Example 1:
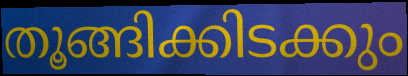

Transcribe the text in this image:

തൂങ്ങിക്കിടക്കും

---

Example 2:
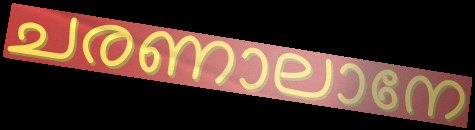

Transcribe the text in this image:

ചരണാലാനേ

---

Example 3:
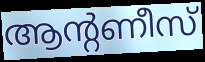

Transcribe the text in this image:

ആന്റണീസ്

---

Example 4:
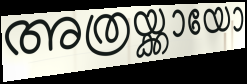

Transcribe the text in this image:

അത്രയ്ക്കായോ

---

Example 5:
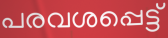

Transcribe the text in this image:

പരവശപ്പെട്ട്